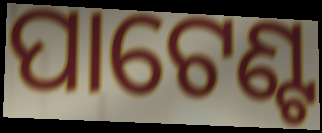
ପାଟେଣ୍ଟ